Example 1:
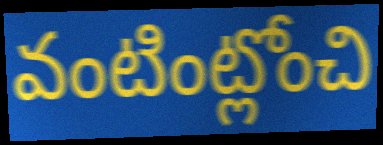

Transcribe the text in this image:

వంటింట్లోంచి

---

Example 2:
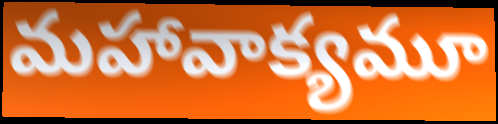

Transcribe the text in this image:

మహావాక్యమూ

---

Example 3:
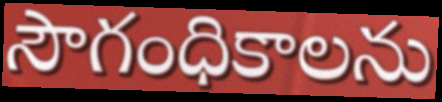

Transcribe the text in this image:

సౌగంధికాలను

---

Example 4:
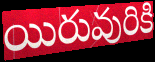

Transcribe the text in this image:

యిరువురికి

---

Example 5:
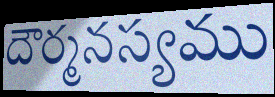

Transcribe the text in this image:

దౌర్మనస్యము